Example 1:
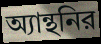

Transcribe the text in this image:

অ্যান্থনির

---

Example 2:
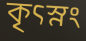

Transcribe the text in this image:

কৃৎস্নং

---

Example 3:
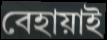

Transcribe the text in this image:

বেহায়াই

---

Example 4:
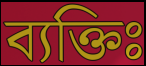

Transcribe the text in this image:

ব্যক্তিঃ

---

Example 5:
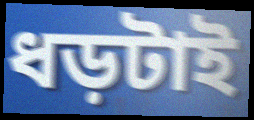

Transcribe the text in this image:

ধড়টাই